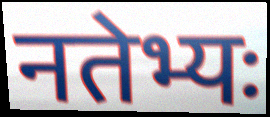
नतेभ्यः